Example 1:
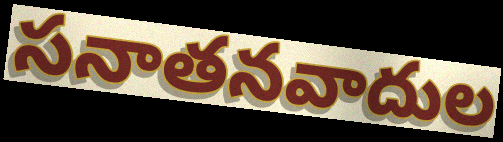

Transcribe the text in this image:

సనాతనవాదుల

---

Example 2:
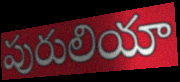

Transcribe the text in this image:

పురులియా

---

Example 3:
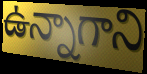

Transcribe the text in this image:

ఉన్నాగాని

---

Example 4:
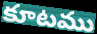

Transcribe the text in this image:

కూటము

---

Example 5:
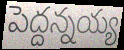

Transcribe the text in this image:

పెద్దన్నయ్య